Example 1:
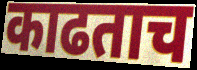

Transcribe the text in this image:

काढताच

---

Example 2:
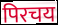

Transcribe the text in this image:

पिरचय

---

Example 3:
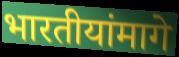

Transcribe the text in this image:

भारतीयांमागे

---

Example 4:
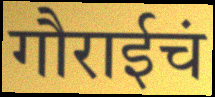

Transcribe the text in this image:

गौराईचं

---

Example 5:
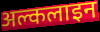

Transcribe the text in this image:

अल्कलाइन